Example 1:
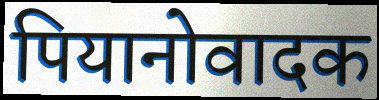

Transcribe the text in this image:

पियानोवादक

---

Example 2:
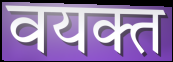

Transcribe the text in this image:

वयक्त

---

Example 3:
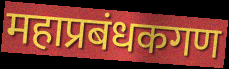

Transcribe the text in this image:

महाप्रबंधकगण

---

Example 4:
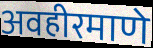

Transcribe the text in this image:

अवहीरमाणे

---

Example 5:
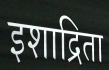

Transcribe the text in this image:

इशाद्रिता